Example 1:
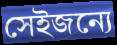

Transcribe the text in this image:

সেইজন্যে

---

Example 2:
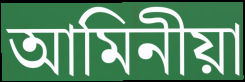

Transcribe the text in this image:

আমিনীয়া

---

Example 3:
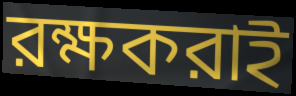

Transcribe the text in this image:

রক্ষকরাই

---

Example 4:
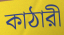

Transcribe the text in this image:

কাঠারী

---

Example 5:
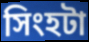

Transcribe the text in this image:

সিংহটা